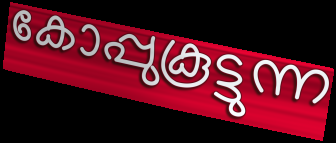
കോപ്പുകൂട്ടുന്ന